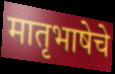
मातृभाषेचे